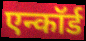
एन्कॉर्ड